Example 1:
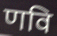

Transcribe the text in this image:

णवि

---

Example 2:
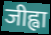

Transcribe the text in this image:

जीह्वा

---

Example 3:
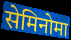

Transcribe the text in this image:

सेमिनोमा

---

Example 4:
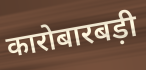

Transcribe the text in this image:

कारोबारबड़ी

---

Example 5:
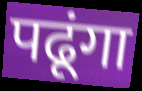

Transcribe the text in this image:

पढूंगा